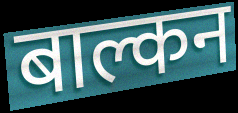
बाल्कन